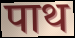
पाथ